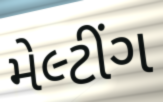
મેલ્ટીંગ